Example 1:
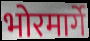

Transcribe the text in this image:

भोरमार्गे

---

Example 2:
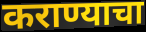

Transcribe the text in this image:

कराण्याचा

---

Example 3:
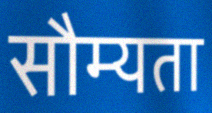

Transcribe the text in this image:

सौम्यता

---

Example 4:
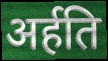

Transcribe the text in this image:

अर्हति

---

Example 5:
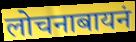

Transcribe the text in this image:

लोचनाबायनं